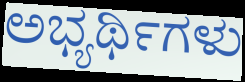
ಅಭ್ಯರ್ಥಿಗಳು